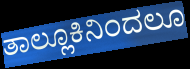
ತಾಲ್ಲೂಕಿನಿಂದಲೂ